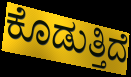
ಕೊಡುತ್ತಿದೆ